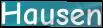
Hausen